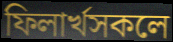
ফিলাৰ্খসকলে